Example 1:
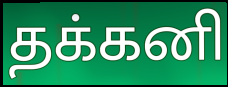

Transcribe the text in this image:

தக்கனி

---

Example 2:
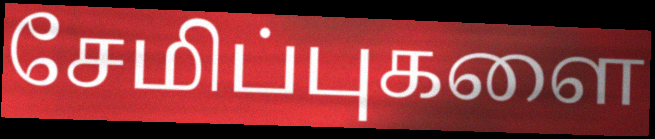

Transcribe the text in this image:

சேமிப்புகளை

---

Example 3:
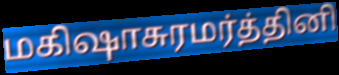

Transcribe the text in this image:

மகிஷாசுரமர்த்தினி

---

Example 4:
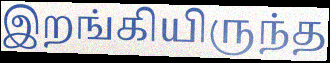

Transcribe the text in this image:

இறங்கியிருந்த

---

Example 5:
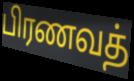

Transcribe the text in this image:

பிரணவத்